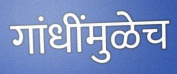
गांधींमुळेच